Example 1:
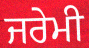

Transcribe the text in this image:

ਜਰੇਮੀ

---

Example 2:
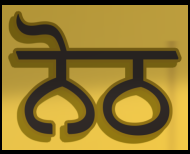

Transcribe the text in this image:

ਨੋਠ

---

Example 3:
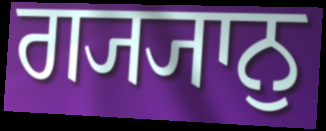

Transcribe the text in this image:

ਗ੍ਯ੍ਯਾਨੁ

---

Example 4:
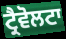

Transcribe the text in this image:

ਟ੍ਰੈਵੋਲਟਾ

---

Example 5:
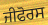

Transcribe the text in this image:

ਜੀਫੋਰਸ